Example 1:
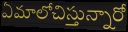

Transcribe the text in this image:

ఏమాలోచిస్తున్నారో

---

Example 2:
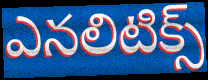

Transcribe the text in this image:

ఎనలిటిక్స్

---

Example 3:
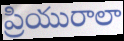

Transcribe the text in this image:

ప్రియురాలా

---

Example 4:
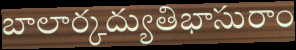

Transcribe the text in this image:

బాలార్కద్యుతిభాసురాం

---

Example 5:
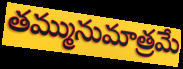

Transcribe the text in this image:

తమ్మునుమాత్రమే